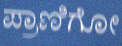
ಪ್ರಾಣಿಗೋ